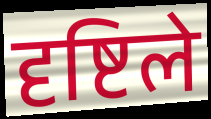
दृष्टिले